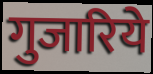
गुजारिये